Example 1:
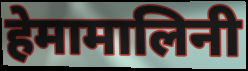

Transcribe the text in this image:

हेमामालिनी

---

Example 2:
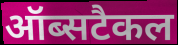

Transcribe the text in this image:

ऑब्सटैकल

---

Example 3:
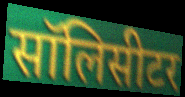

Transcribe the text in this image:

सॉलिसीटर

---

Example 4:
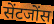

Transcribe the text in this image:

सेंटजोंस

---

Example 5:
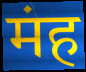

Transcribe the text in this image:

मंह